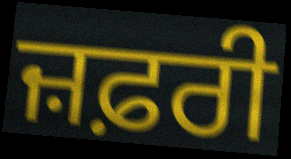
ਜ਼ਫ਼ਰੀ